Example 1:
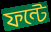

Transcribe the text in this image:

ফন্টে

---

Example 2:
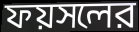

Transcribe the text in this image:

ফয়সলের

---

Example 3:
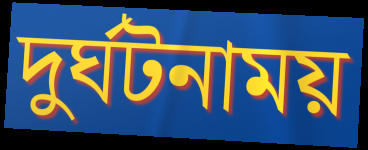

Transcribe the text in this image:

দুর্ঘটনাময়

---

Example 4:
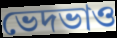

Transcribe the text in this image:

ভেদভাও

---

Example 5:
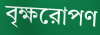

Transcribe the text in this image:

বৃক্ষরোপণ